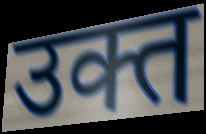
उक्‍त